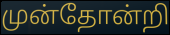
முன்தோன்றி